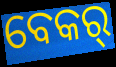
ବେକର୍